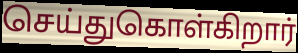
செய்துகொள்கிறார்